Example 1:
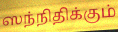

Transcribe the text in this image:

ஸந்நிதிக்கும்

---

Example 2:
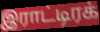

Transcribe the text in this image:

இராட்டிரக்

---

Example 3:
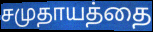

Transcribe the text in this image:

சமுதாயத்தை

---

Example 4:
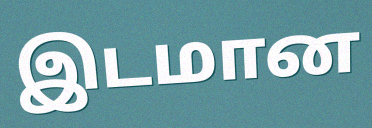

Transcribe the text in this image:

இடமான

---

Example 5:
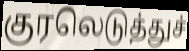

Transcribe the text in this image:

குரலெடுத்துச்